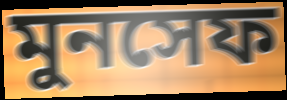
মুনসেফ